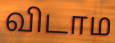
விடாம